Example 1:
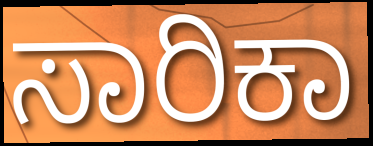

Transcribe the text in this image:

ಸಾರಿಕಾ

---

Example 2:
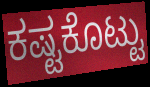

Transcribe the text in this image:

ಕಷ್ಟಕೊಟ್ಟು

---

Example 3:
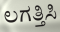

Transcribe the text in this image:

ಲಗತ್ತಿಸಿ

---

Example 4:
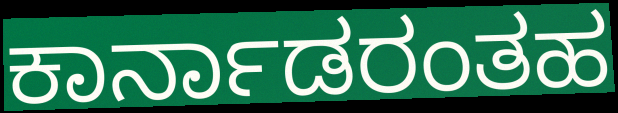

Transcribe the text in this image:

ಕಾರ್ನಾಡರಂತಹ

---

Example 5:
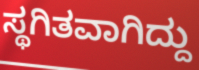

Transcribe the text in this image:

ಸ್ಥಗಿತವಾಗಿದ್ದು